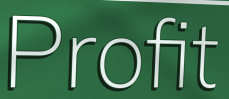
Profit